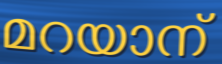
മറയാന്